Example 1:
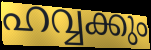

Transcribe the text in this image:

ഹവ്വക്കും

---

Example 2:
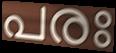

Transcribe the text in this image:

പരഃ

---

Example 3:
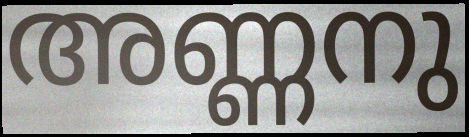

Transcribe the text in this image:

അണ്ണനു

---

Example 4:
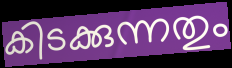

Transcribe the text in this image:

കിടക്കുന്നതും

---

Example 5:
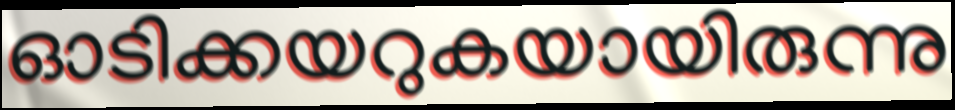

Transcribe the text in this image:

ഓടിക്കയറുകയായിരുന്നു